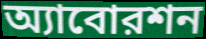
অ্যাবোরশন